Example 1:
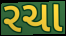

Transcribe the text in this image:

રચા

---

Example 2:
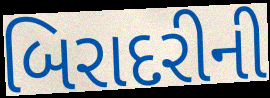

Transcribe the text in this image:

બિરાદરીની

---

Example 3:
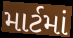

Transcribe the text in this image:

માર્ટમાં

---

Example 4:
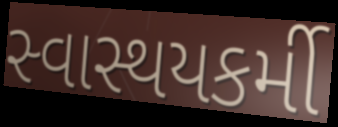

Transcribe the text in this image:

સ્વાસ્થયકર્મી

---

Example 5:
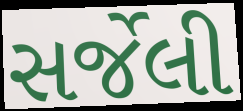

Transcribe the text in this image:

સર્જેલી